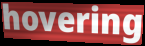
hovering